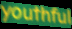
youthful